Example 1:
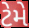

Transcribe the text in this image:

ટેમે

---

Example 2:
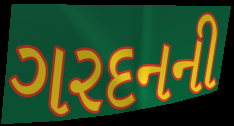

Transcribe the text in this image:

ગરદનની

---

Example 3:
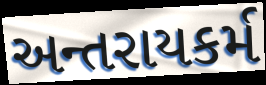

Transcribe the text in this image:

અન્તરાયકર્મ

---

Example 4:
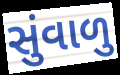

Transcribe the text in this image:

સુંવાળુ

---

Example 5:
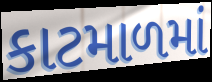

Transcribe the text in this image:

કાટમાળમાં